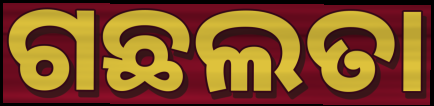
ଗଛଲତା